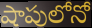
షాపులోనో